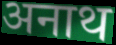
अनाथ